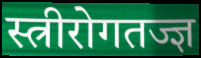
स्‍त्रीरोगतज्‍ज्ञ